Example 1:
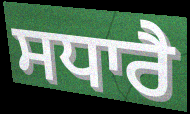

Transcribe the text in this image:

ਸਧਾਰੈ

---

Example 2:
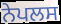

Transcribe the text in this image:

ਨੇਪਲਸ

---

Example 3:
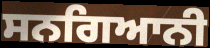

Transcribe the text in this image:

ਸਨਗਿਆਨੀ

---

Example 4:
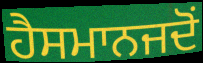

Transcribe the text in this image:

ਹੈਸਮਾਨਜਦੋਂ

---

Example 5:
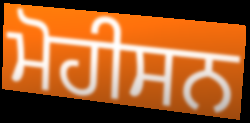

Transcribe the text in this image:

ਮੋਹੀਸਨ